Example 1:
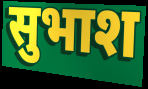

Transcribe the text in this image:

सुभाश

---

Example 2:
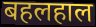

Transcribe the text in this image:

बहलहाल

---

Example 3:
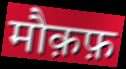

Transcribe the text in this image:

मौक़फ़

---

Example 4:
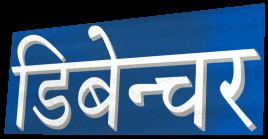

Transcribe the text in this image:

डिबेन्चर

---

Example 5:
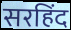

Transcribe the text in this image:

सरहिंद